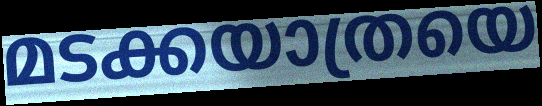
മടക്കയാത്രയെ